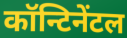
कॉन्टिनेंटल